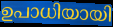
ഉപാധിയായി